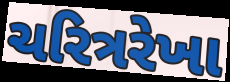
ચરિત્રરેખા